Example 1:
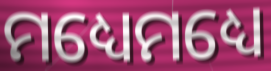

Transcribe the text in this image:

ମଧ୍ୟେମଧ୍ୟେ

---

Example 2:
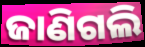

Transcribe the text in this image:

ଜାଣିଗଲି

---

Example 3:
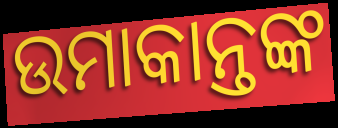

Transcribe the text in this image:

ଉମାକାନ୍ତଙ୍କ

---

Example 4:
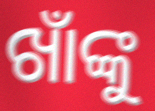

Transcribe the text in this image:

ଖାଁଙ୍କୁ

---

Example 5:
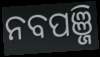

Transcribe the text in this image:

ନବପଞ୍ଜି